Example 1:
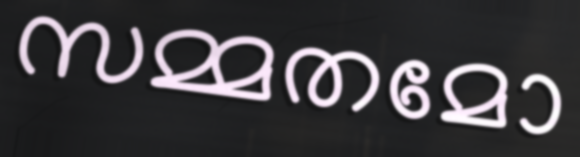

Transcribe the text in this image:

സമ്മതമോ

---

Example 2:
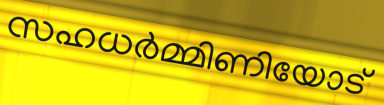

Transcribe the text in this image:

സഹധർമ്മിണിയോട്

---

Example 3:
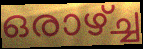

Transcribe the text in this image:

ഒരാഴ്ച്ച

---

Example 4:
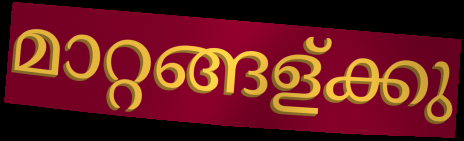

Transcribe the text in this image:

മാറ്റങ്ങള്ക്കു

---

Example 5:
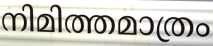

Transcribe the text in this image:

നിമിത്തമാത്രം